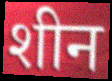
शीन